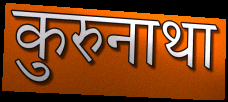
कुरुनाथा